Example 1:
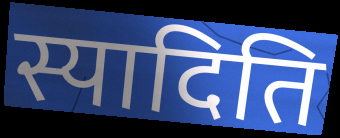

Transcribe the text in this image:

स्यादिति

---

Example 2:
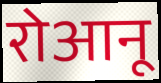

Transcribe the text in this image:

रोआनू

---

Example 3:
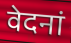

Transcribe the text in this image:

वेदनां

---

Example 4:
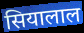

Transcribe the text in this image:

सियालाल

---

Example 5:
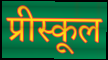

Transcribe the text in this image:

प्रीस्कूल